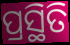
ପ୍ରସ୍ଥିତି